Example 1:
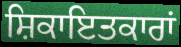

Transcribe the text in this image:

ਸ਼ਿਕਾਇਤਕਾਰਾਂ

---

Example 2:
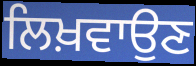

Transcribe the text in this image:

ਲਿਖ਼ਵਾਉਣ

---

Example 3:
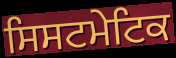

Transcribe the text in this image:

ਸਿਸਟਮੇਟਿਕ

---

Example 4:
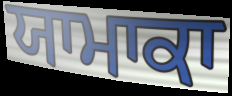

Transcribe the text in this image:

ਯਾਮਾਕਾ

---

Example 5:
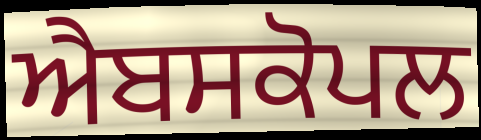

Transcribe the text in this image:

ਐਬਸਕੋਪਲ